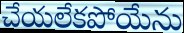
చేయలేకపోయేను